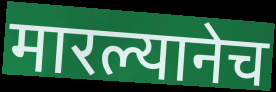
मारल्यानेच